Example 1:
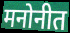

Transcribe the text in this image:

मनोनीत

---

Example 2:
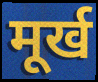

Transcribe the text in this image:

मूर्ख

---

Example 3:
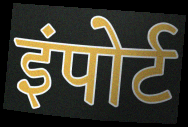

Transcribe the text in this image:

इंपोर्ट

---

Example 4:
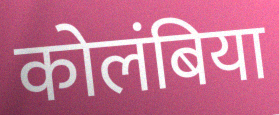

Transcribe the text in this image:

कोलंबिया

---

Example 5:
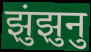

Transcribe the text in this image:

झुंझुनु